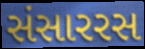
સંસારરસ